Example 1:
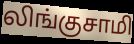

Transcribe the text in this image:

லிங்குசாமி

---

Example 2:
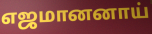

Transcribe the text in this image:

எஜமானனாய்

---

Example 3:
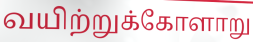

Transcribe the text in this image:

வயிற்றுக்கோளாறு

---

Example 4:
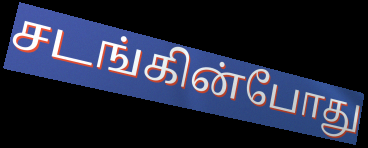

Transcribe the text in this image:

சடங்கின்போது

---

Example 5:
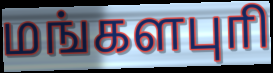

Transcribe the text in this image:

மங்களபுரி